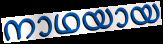
നാഥയായ